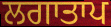
ਲਗਾਤਾਪ